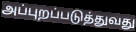
அப்புறப்படுத்துவது